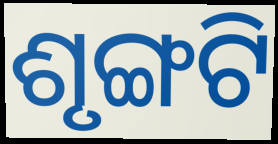
ଶୃଙ୍ଗଟି